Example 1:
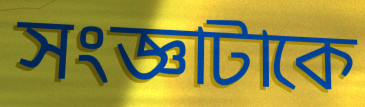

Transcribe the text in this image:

সংজ্ঞাটাকে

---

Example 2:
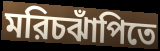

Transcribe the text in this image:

মরিচঝাঁপিতে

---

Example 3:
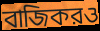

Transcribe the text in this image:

বাজিকরও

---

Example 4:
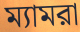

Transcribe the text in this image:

ম্যামরা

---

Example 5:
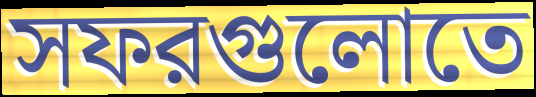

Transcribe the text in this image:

সফরগুলোতে